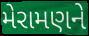
મેરામણને